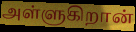
அள்ளுகிறான்